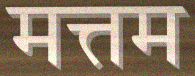
मत्तम